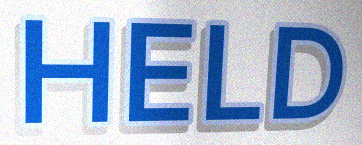
HELD